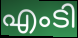
എംടി